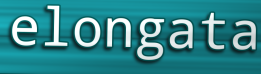
elongata